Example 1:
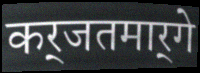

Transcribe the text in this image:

कर्जतमार्गे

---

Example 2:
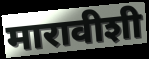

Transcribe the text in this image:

मारावीशी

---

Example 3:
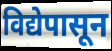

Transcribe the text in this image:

विद्येपासून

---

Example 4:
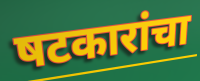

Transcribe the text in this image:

षटकारांचा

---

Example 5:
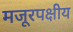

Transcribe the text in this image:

मजूरपक्षीय